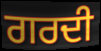
ਗਰਦੀ